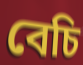
বেচি